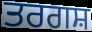
ਤਰਗਸ਼